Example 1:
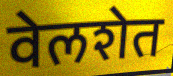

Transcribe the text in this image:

वेलशेत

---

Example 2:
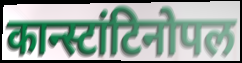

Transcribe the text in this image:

कान्स्टांटिनोपल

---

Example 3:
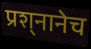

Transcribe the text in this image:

प्रश्नानेच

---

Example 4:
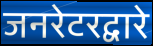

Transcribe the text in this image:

जनरेटरद्वारे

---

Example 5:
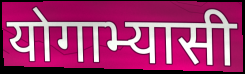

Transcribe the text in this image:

योगाभ्यासी